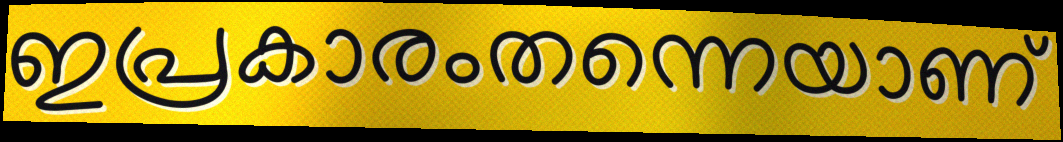
ഇപ്രകാരംതന്നെയാണ്